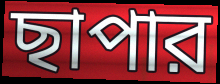
ছাপার